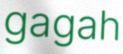
gagah